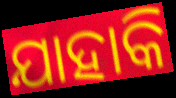
ଯାହାକି